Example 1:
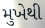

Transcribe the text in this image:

મુખેથી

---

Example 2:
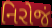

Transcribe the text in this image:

નિરોજં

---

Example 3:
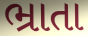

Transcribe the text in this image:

ભ્રાતા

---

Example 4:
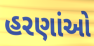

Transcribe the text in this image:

હરણાંઓ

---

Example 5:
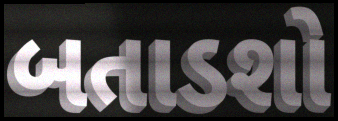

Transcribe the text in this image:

બતાડશો